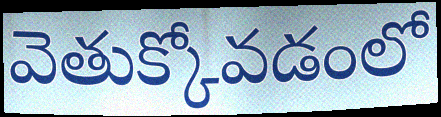
వెతుక్కోవడంలో